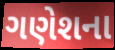
ગણેશના